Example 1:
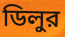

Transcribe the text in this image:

ডিলুর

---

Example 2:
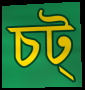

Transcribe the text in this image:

চট্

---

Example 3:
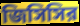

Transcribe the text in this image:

জিসিসির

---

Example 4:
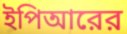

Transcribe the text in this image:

ইপিআরের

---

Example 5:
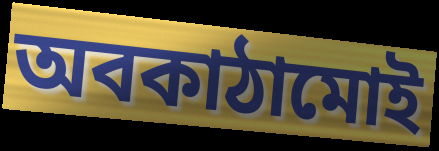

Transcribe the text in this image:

অবকাঠামোই